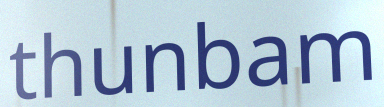
thunbam